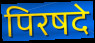
पिरषदे